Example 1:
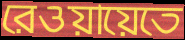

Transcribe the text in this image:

রেওয়ায়েতে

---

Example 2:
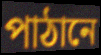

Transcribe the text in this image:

পাঠানে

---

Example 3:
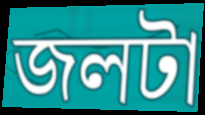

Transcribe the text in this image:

জলটা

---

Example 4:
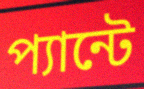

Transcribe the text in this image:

প্যান্টে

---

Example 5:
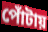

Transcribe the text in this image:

পোঁটায়